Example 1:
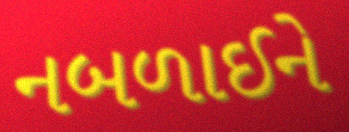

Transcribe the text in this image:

નબળાઈને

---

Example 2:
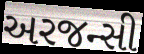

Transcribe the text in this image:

અરજન્સી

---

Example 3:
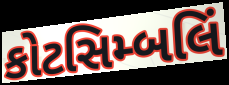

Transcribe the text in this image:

કોટસિમ્બલિં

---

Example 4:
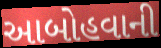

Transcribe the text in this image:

આબોહવાની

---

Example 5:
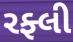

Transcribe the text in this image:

રફ્લી